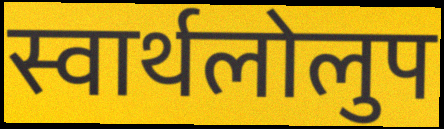
स्वार्थलोलुप